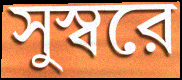
সুস্বরে